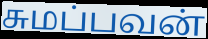
சுமப்பவன்